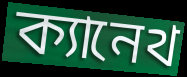
ক্যানেথ